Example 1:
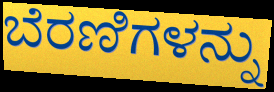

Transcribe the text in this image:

ಬೆರಣಿಗಳನ್ನು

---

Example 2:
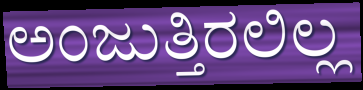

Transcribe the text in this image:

ಅಂಜುತ್ತಿರಲಿಲ್ಲ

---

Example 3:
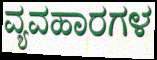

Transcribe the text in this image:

ವ್ಯವಹಾರಗಳ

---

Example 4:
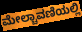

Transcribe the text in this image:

ಮೇಲ್ಚಾವಣಿಯಲ್ಲಿ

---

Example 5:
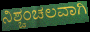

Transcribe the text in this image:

ನಿಶ್ಚಂಚಲವಾಗಿ